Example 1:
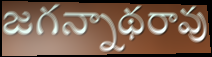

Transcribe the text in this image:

జగన్నాథరావు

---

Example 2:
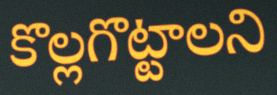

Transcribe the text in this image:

కొల్లగొట్టాలని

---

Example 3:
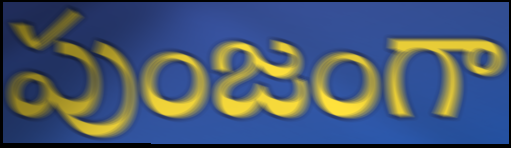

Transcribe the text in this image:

పుంజంగా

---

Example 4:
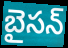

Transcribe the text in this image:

బైసన్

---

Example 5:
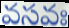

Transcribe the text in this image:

వసవః